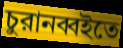
চুরানব্বইতে